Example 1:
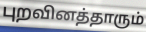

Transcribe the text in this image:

புறவினத்தாரும்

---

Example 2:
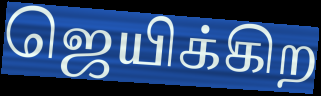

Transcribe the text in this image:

ஜெயிக்கிற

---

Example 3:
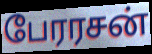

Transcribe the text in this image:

பேரரசன்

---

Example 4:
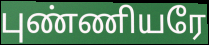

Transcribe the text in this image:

புண்ணியரே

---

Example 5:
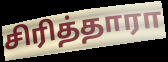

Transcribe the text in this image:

சிரித்தாரா